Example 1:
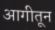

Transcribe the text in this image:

आगीतून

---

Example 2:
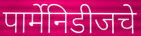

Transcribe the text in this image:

पार्मेनिडीजचे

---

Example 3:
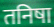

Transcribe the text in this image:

तनिषा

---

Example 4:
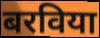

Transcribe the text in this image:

बरविया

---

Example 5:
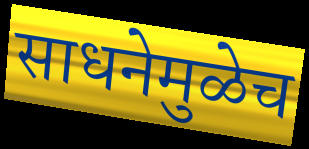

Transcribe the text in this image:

साधनेमुळेच